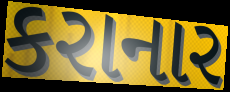
કરાનાર